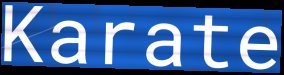
Karate